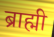
ब्राह्मी